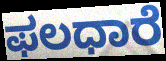
ಫಲಧಾರೆ